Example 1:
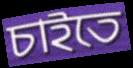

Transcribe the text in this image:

চাইতে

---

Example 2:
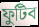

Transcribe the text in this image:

ফুটিব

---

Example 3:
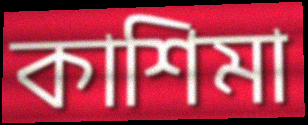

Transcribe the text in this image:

কাশিমা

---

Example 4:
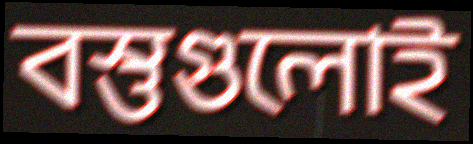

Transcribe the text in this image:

বস্তুগুলোই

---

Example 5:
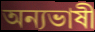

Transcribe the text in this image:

অন্যভাষী